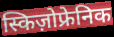
स्किज़ोफ्रेनिक